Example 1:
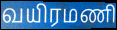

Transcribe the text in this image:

வயிரமணி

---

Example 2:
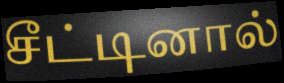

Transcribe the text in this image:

சீட்டினால்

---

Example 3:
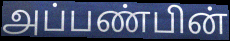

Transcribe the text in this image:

அப்பண்பின்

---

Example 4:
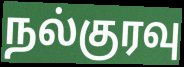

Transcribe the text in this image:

நல்குரவு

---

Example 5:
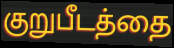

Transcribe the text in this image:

குறுபீடத்தை